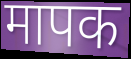
मापक